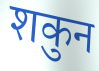
शकुन